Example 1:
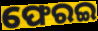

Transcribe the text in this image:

ଫେରଇ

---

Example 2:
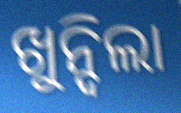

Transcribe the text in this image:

ଖୁନ୍ଦିଲା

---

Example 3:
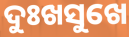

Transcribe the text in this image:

ଦୁଃଖସୁଖେ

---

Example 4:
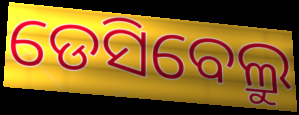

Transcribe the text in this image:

ଡେସିବେଲ୍ରୁ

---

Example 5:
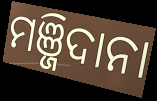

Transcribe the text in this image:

ମଞ୍ଜିଦାନା